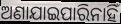
ଅଣାଯାଇପାରିନାହିଁ